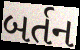
બર્તન